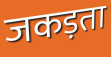
जकड़ता